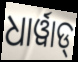
ଧାର୍ୱାଡ୍